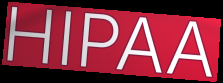
HIPAA